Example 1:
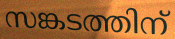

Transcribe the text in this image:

സങ്കടത്തിന്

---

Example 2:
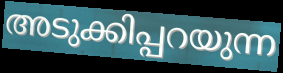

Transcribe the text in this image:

അടുക്കിപ്പറയുന്ന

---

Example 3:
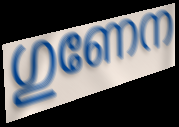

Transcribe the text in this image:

ഗുണേന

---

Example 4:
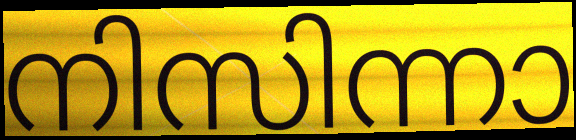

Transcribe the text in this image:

നിസിന്നാ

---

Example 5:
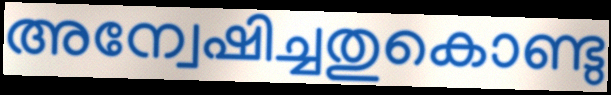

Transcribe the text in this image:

അന്വേഷിച്ചതുകൊണ്ടു